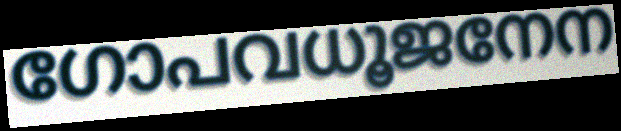
ഗോപവധൂജനേന